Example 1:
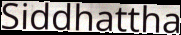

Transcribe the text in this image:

Siddhattha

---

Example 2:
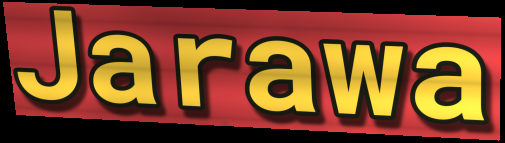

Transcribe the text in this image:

Jarawa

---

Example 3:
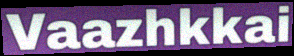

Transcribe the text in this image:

Vaazhkkai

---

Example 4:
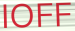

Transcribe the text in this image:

IOFF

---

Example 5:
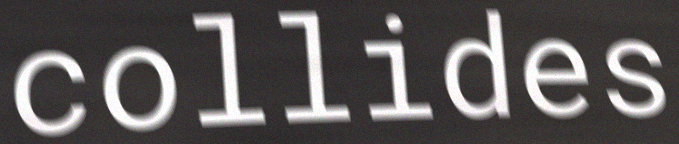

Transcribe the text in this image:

collides